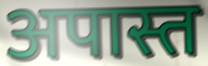
अपास्त